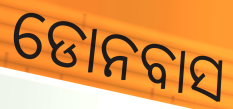
ଡୋନବାସ